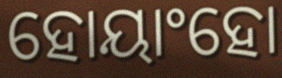
ହୋୟାଂହୋ